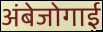
अंबेजोगाई